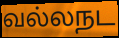
வல்லநட